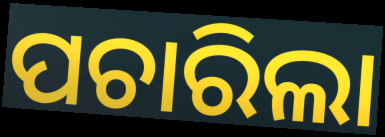
ପଚାରିଲା